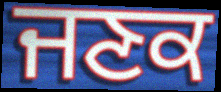
ਜਣਕ